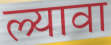
ल्यावा